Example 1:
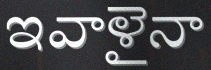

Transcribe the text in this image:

ఇవాళైనా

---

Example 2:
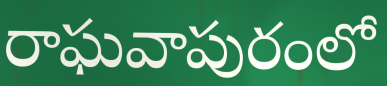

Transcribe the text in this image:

రాఘవాపురంలో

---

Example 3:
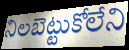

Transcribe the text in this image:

నిలబెట్టుకోలేని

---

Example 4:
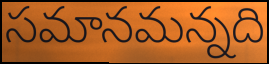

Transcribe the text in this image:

సమానమన్నది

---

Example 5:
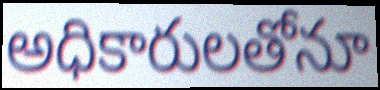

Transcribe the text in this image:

అధికారులతోనూ